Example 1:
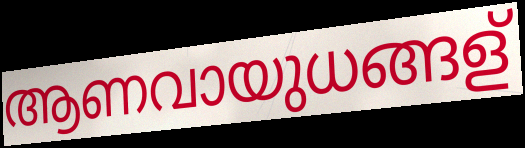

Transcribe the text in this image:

ആണവായുധങ്ങള്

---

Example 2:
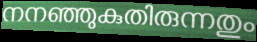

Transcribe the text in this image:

നനഞ്ഞുകുതിരുന്നതും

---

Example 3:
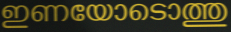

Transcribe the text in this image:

ഇണയോടൊത്തു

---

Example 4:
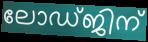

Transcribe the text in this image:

ലോഡ്ജിന്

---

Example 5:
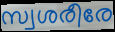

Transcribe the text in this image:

സ്വശരീരേ